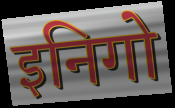
इनिगो